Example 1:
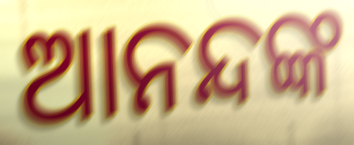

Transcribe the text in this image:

ଆନନ୍ଦଙ୍କ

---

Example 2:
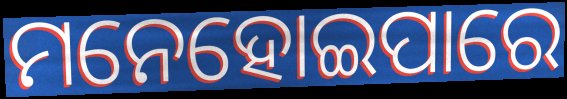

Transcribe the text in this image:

ମନେହୋଇପାରେ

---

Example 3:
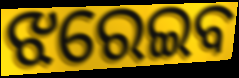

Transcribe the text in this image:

ଝରେଇବ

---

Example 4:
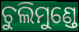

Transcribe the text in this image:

ଚୁଲିମୁଣ୍ଡେ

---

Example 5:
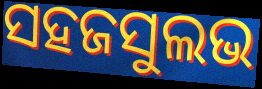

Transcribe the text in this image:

ସହଜସୁଲଭ